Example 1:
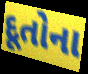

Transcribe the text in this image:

દૂતોના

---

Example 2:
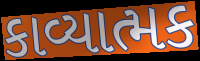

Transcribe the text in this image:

કાવ્યાત્મક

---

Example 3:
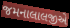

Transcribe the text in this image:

જમનાલાલજીએ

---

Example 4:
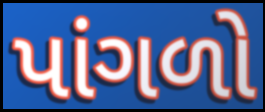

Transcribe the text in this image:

પાંગળો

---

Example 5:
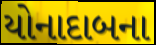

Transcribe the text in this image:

યોનાદાબના